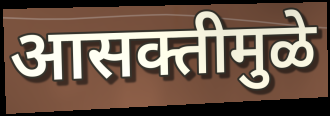
आसक्तीमुळे